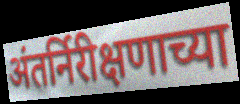
अंतर्निरीक्षणाच्या